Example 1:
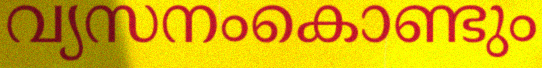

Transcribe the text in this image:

വ്യസനംകൊണ്ടും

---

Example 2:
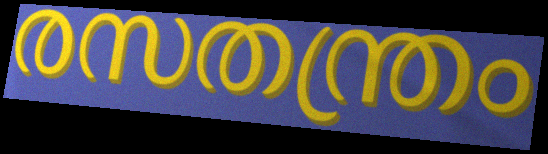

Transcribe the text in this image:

രസതന്ത്രം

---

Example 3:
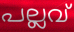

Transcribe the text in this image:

പല്ലവ്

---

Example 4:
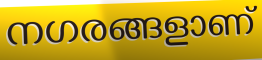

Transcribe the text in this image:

നഗരങ്ങളാണ്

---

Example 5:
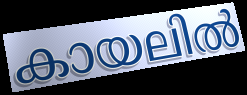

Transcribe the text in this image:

കായലിൽ